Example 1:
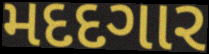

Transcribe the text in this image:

મદદગાર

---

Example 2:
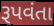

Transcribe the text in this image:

રૂપવંતા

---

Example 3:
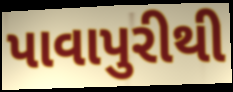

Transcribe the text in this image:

પાવાપુરીથી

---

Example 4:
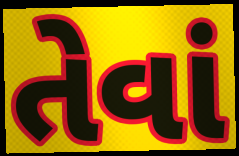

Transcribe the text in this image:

તેવાં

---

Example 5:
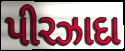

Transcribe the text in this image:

પીરઝાદા